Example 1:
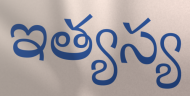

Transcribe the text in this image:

ఇత్యస్య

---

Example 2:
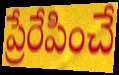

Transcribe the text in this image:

ప్రేరేపించే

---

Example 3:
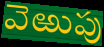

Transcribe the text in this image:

వెఱుపు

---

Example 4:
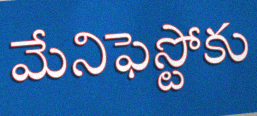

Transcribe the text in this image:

మేనిఫెస్టోకు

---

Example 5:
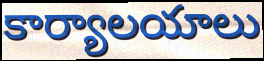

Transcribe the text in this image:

కార్యాలయాలు